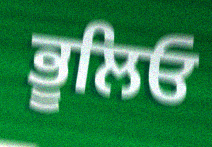
ਭੂਲਿਓ